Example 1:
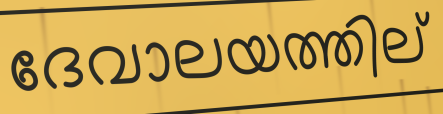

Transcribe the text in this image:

ദേവാലയത്തില്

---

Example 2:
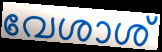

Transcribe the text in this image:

വേശാശ്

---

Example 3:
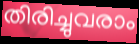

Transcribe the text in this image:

തിരിച്ചുവരാം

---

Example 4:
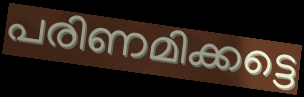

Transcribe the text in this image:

പരിണമിക്കട്ടെ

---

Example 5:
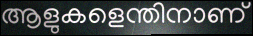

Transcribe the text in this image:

ആളുകളെന്തിനാണ്